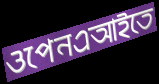
ওপেনএআইতে